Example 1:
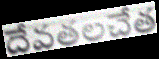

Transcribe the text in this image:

దేవతలచేత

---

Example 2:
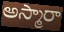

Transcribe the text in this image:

అస్మారా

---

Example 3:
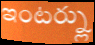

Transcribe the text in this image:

ఇంటర్న్లు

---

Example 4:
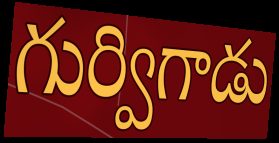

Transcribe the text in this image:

గుర్విగాడు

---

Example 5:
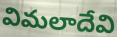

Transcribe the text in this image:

విమలాదేవి